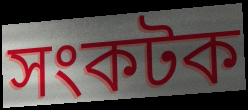
সংকটক